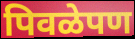
पिवळेपण